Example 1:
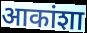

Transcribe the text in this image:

आकांशा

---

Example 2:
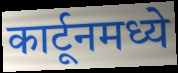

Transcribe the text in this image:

कार्टूनमध्ये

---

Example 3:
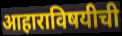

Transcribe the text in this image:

आहाराविषयीची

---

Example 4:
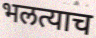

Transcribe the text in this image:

भलत्याच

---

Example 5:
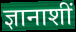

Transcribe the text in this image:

ज्ञानाशीं